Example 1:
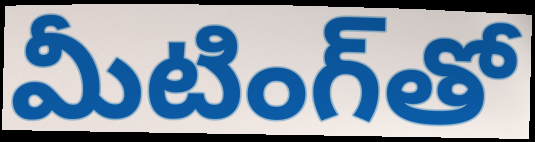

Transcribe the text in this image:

మీటింగ్‌తో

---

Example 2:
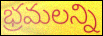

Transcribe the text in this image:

భ్రమలన్ని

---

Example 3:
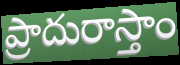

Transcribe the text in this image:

ప్రాదురాస్తాం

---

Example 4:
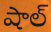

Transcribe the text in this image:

షాల్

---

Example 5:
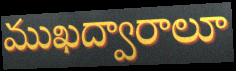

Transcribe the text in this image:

ముఖద్వారాలూ